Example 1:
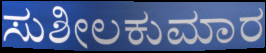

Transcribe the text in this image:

ಸುಶೀಲಕುಮಾರ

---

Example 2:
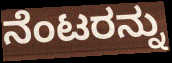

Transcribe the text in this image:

ನೆಂಟರನ್ನು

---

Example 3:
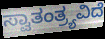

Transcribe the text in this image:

ಸ್ವಾತಂತ್ರ್ಯವಿದೆ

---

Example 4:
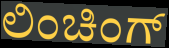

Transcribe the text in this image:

ಲಿಂಚಿಂಗ್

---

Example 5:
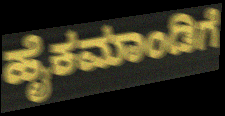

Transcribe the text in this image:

ಹೈಕಮಾಂಡಿಗೆ